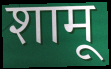
शामू